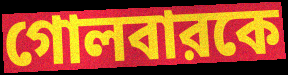
গোলবারকে